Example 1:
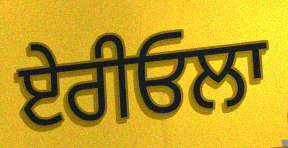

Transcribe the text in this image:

ਏਰੀਓਲਾ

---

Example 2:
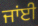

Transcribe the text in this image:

ਜਾਂਈ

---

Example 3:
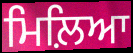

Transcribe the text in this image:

ਮਿਲ਼ਿਆ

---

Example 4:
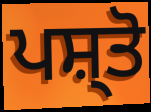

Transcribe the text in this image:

ਪਸ਼੍ਤੋ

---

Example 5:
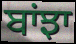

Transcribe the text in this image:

ਬਾਂਝਾ